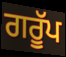
ਗਰੂੱਪ